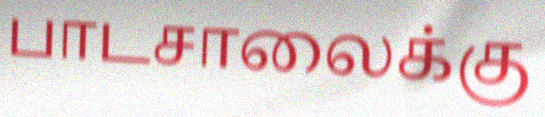
பாடசாலைக்கு